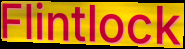
Flintlock